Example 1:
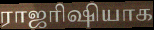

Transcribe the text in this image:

ராஜரிஷியாக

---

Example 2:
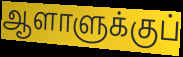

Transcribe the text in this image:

ஆளாளுக்குப்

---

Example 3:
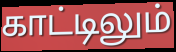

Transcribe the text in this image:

காட்டிலும்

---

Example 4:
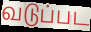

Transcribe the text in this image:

வடுப்பட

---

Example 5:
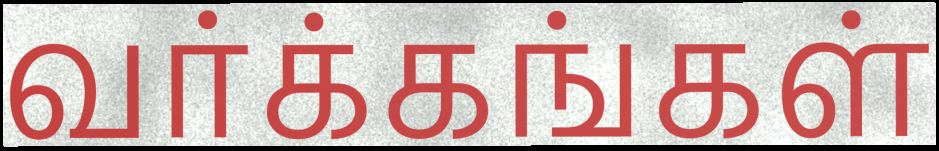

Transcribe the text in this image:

வர்க்கங்கள்